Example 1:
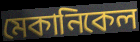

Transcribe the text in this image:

মেকানিকেল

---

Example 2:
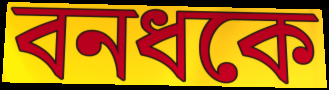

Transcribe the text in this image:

বনধকে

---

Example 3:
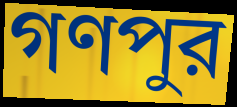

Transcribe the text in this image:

গণপুর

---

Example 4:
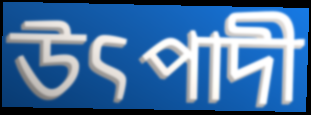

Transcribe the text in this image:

উৎপাদী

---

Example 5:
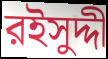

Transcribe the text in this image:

রইসুদ্দী